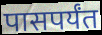
पासपर्यंत